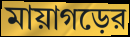
মায়াগড়ের